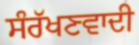
ਸੰਰੱਖਣਵਾਦੀ